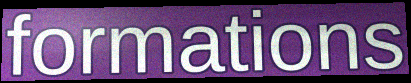
formations